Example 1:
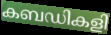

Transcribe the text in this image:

കബഡികളി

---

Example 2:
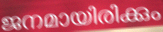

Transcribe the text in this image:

ജനമായിരിക്കും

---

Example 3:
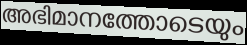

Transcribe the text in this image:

അഭിമാനത്തോടെയും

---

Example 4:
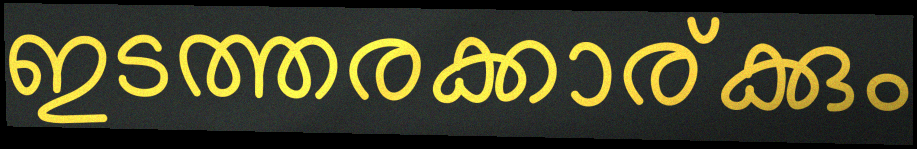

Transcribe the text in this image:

ഇടത്തരക്കാര്ക്കും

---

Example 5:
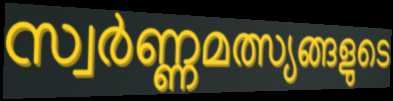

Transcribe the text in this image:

സ്വർണ്ണമത്സ്യങ്ങളുടെ